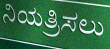
ನಿಯತ್ರಿಸಲು